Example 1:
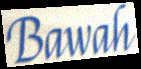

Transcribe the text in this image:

Bawah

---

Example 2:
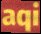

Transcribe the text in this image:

aqi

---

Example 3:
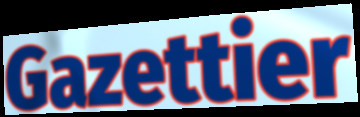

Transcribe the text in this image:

Gazettier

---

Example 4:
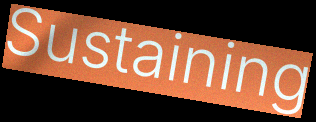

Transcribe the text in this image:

Sustaining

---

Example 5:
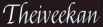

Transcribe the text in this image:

Theiveekan